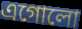
এগোলো